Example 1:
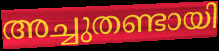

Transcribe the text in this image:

അച്ചുതണ്ടായി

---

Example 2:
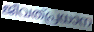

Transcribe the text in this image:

ജീവത്പ്രധാന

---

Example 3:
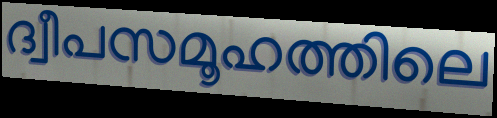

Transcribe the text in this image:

ദ്വീപസമൂഹത്തിലെ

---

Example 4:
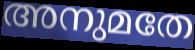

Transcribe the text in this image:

അനുമതേ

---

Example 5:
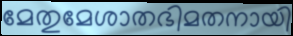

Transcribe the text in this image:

മേതുമേശാതഭിമതനായി